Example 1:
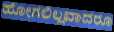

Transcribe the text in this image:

ಹೋಗಲಿಲ್ಲವಾದರೂ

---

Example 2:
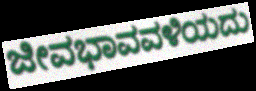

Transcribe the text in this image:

ಜೀವಭಾವವಳಿಯದು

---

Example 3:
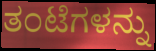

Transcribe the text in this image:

ತಂಟೆಗಳನ್ನು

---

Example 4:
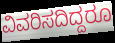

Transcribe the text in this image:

ವಿವರಿಸದಿದ್ದರೂ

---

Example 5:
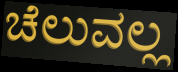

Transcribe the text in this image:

ಚೆಲುವಲ್ಲ